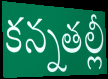
కన్నతల్లీ